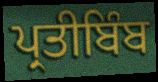
ਪ੍ਰਤੀਬਿੰਬ